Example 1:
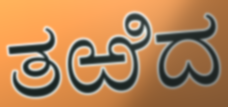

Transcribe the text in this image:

ತಱಿದ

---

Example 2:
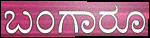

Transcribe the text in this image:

ಬಂಗಾರೂ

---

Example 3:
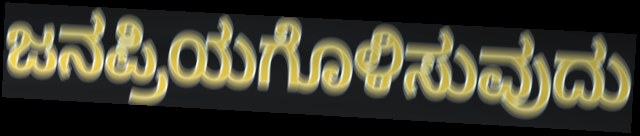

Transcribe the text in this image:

ಜನಪ್ರಿಯಗೊಳಿಸುವುದು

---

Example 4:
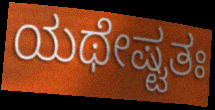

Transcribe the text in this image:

ಯಥೇಷ್ಟತಃ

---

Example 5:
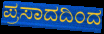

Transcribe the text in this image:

ಪ್ರಸಾದದಿಂದ